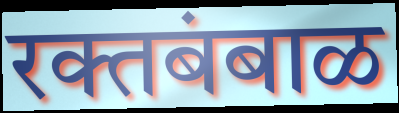
रक्‍तबंबाळ